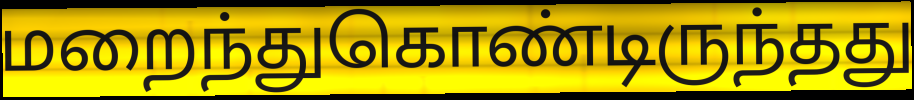
மறைந்துகொண்டிருந்தது